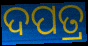
ଦପତ୍ର